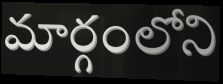
మార్గంలోని